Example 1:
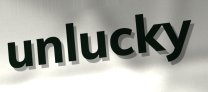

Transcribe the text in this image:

unlucky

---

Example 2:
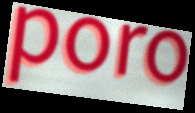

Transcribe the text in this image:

poro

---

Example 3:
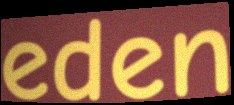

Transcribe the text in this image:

eden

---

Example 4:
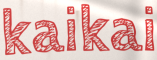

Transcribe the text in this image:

kaikai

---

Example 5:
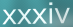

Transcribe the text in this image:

xxxiv